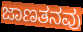
ಜಾಣತನವು